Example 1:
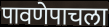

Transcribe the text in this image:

पावणेपाचला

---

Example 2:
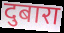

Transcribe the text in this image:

दुबारा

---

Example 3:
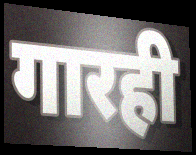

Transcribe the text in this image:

गारही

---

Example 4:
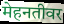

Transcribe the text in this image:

मेहनतीवर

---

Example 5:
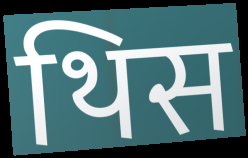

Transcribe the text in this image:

थिस